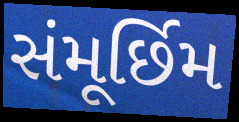
સંમૂર્છિમ